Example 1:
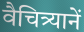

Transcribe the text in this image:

वैचित्र्यानें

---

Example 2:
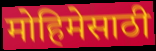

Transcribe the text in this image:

मोहिमेसाठी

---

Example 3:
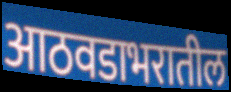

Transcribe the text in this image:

आठवडाभरातील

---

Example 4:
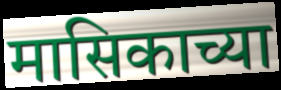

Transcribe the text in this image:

मासिकाच्या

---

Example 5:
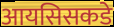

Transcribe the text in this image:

आयसिसकडे